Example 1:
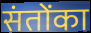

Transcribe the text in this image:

संतोंका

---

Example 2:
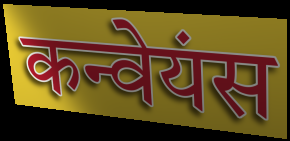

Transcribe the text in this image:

कन्वेयंस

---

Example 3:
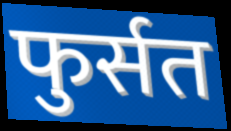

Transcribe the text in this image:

फुर्सत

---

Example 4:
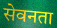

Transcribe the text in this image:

सेवनता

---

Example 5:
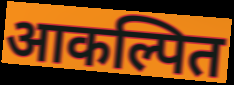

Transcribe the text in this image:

आकल्पित